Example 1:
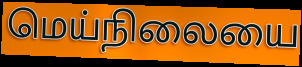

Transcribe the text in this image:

மெய்நிலையை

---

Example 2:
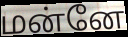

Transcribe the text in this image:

மன்னே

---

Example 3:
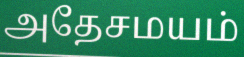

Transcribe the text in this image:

அதேசமயம்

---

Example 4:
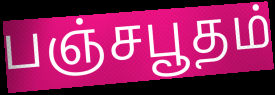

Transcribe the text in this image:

பஞ்சபூதம்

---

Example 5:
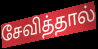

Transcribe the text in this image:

சேவித்தால்